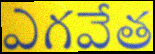
ఎగవేత